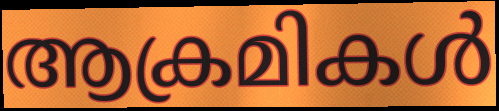
ആക്രമികൾ